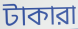
টাকারা